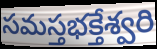
సమస్తభక్తేశ్వరి